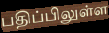
பதிப்பிலுள்ள